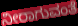
ನೀರಾಗುವಂತೆ